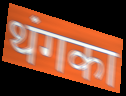
थंगका